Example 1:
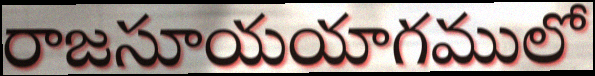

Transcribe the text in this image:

రాజసూయయాగములో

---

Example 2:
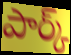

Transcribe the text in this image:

పార్క్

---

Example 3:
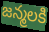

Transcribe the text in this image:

జన్మలకి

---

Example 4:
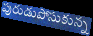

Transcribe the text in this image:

పురుడుపోసుకున్న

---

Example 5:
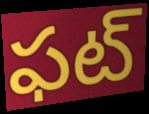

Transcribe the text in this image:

ఫట్